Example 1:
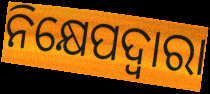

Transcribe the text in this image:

ନିକ୍ଷେପଦ୍ୱାରା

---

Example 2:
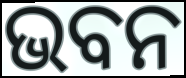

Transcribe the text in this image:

ଭବନ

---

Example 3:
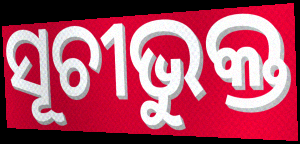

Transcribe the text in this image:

ସୂଚୀଭୁକ୍ତ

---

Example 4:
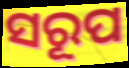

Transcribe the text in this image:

ସରୂପ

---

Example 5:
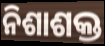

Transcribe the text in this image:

ନିଶାଶକ୍ତ